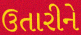
ઉતારીને